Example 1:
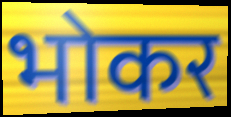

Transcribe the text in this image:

भोकर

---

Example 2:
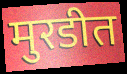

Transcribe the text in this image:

मुरडीत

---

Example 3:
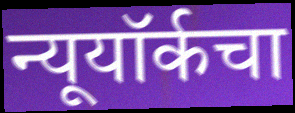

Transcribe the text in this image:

न्यूयॉर्कचा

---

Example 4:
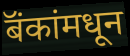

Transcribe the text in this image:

बॅंकांमधून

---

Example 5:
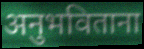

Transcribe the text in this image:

अनुभविताना